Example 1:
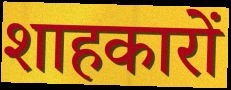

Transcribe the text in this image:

शाहकारों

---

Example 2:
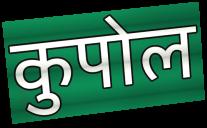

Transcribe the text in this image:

कुपोल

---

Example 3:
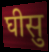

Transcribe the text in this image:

घीसु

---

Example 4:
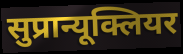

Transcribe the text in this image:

सुप्रान्यूक्लियर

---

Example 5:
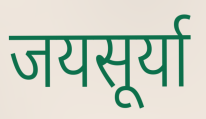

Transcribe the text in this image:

जयसूर्या